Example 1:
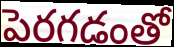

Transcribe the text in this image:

పెరగడంతో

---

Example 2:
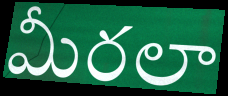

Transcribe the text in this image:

మీరలా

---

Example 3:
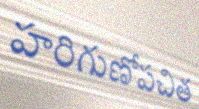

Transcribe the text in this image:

హరిగుణోపచిత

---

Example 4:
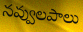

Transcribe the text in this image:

నవ్వులపాలు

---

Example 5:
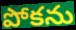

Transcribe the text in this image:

పోకను